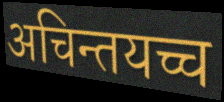
अचिन्तयच्च